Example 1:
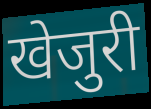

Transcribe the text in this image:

खेजुरी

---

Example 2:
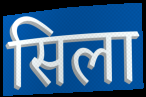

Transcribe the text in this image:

सिला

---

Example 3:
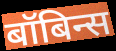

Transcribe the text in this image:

बॉबिन्स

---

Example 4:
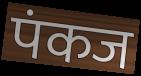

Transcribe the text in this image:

पंकज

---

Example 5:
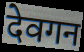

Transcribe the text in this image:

देवगन